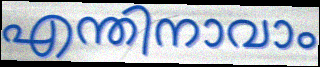
എന്തിനാവാം